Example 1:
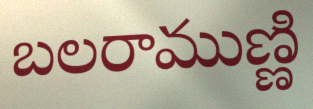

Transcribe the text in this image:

బలరాముణ్ణి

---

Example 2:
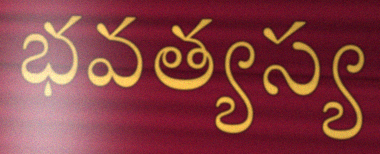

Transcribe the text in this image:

భవత్యస్య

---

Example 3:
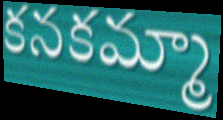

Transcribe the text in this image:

కనకమ్మా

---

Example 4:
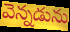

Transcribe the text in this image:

వెన్నడును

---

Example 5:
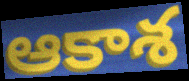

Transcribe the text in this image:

ఆకాశ